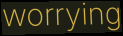
worrying